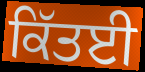
ਕਿੱਤਈ